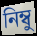
নিম্বু